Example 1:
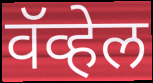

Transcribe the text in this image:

वॅव्हेल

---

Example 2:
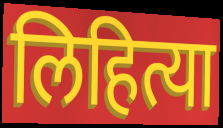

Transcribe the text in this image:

लिहित्या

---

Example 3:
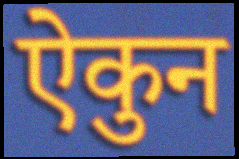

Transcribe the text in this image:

ऐकुन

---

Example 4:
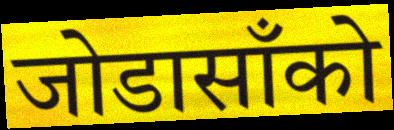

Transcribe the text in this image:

जोडासाँको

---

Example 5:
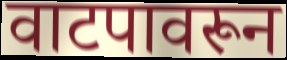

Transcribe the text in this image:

वाटपावरून